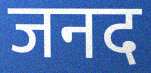
जनद